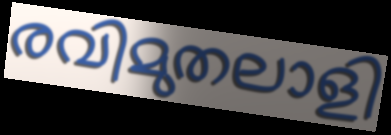
രവിമുതലാളി